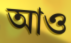
আও